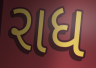
રાધ